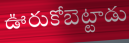
ఊరుకోబెట్టాడు